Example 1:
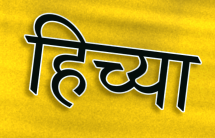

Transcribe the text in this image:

हिच्या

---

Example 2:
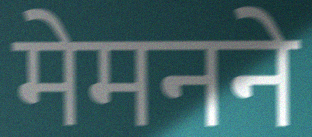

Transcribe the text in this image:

मेमनने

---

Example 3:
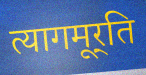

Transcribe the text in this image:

त्यागमूर्ति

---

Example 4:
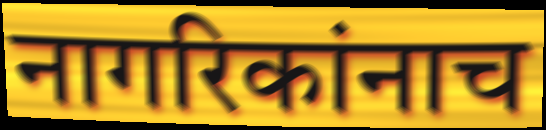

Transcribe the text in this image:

नागरिकांनाच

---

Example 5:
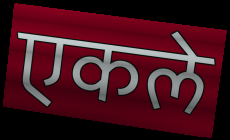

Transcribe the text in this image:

एकले